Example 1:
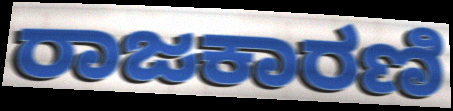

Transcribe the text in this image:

ರಾಜಕಾರಣಿ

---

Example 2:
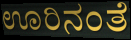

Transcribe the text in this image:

ಊರಿನಂತೆ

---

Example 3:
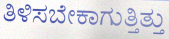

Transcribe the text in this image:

ತಿಳಿಸಬೇಕಾಗುತ್ತಿತ್ತು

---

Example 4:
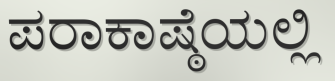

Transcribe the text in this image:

ಪರಾಕಾಷ್ಠೆಯಲ್ಲಿ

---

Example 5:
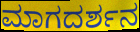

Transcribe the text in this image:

ಮಾಗದರ್ಶನ